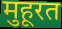
मुहूरत